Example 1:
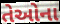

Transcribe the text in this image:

તેઓના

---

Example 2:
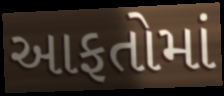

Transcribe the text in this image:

આફતોમાં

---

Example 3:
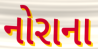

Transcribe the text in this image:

નોરાના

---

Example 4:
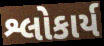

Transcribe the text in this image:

શ્લોકાર્ય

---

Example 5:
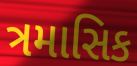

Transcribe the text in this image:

ત્રમાસિક